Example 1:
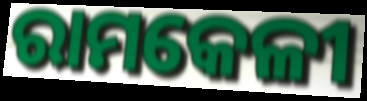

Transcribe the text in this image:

ରାମକେଳୀ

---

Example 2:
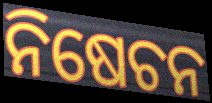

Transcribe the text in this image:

ନିଷେଚନ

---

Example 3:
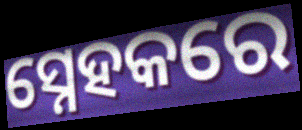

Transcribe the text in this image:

ସ୍ନେହକରେ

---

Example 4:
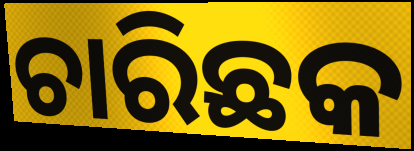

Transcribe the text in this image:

ଚାରିଛକ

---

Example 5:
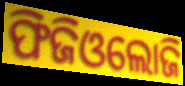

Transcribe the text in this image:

ଫିଜିଓଲୋଜି